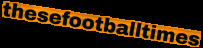
thesefootballtimes